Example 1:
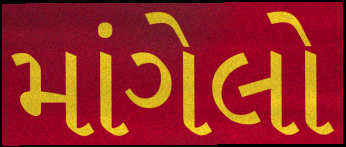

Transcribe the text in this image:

માંગેલો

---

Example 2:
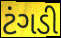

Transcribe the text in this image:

ટંગડી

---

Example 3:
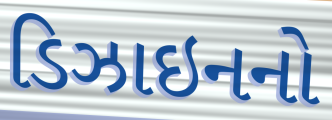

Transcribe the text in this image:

ડિઝાઇનનો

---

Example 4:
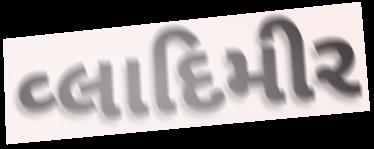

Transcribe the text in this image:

વ્લાદિમીર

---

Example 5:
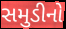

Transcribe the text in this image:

સમુડીનો